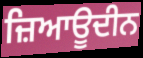
ਜ਼ਿਆਊਦੀਨ